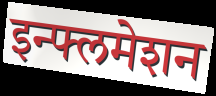
इन्फ्लमेशन